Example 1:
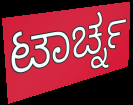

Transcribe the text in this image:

ಟಾರ್ಚ್ನ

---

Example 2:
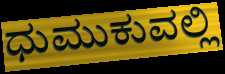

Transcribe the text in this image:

ಧುಮುಕುವಲ್ಲಿ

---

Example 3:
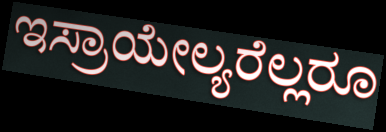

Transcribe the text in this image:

ಇಸ್ರಾಯೇಲ್ಯರೆಲ್ಲರೂ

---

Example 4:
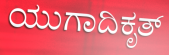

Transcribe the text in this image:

ಯುಗಾದಿಕೃತ್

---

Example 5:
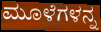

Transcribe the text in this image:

ಮೂಳೆಗಳನ್ನ